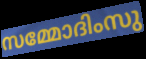
സമ്മോദിംസു